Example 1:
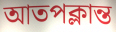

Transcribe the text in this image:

আতপক্লান্ত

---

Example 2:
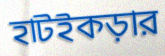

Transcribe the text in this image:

হাটইকড়ার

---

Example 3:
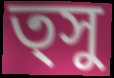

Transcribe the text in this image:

ত্সু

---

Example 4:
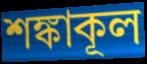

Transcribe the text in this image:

শঙ্কাকূল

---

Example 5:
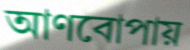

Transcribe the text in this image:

আণবোপায়